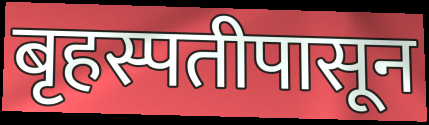
बृहस्पतीपासून